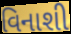
વિનાશી